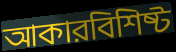
আকারবিশিষ্ট